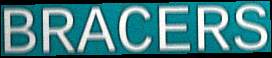
BRACERS